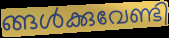
ങ്ങൾക്കുവേണ്ടി